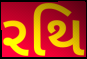
રથિ